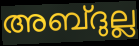
അബ്ദുല്ല